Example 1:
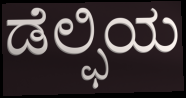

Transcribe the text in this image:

ಡೆಲ್ಫಿಯ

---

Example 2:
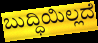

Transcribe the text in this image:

ಬುದ್ಧಿಯಿಲ್ಲದೆ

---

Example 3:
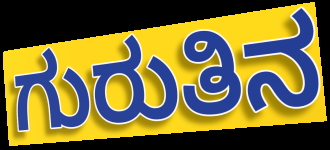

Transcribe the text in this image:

ಗುರುತಿನ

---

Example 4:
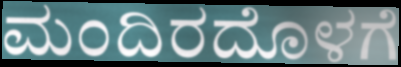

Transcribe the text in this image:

ಮಂದಿರದೊಳಗೆ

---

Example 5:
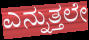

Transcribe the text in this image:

ಎನ್ನುತ್ತಲೇ